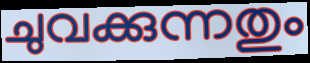
ചുവക്കുന്നതും